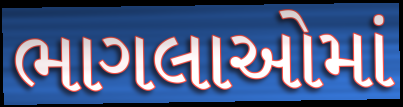
ભાગલાઓમાં